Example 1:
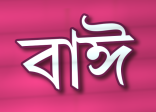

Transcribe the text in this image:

বাঈ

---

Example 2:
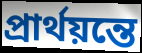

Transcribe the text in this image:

প্রার্থয়ন্তে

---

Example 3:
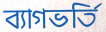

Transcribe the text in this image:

ব্যাগভর্তি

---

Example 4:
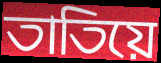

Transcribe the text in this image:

তাতিয়ে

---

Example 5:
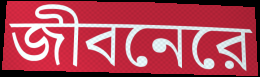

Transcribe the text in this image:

জীবনেরে